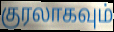
குரலாகவும்